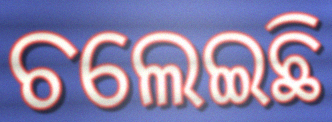
ଚଲେଇଛି